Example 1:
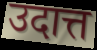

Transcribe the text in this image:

उदात्त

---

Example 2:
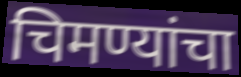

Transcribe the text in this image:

चिमण्यांचा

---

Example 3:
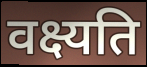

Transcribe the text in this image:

वक्ष्यति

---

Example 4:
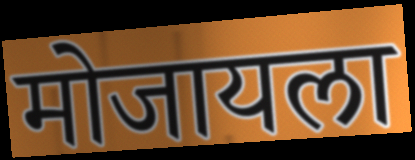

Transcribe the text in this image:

मोजायला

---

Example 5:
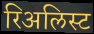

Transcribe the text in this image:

रिअलिस्ट